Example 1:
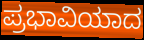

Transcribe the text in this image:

ಪ್ರಭಾವಿಯಾದ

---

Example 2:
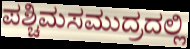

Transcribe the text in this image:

ಪಶ್ಚಿಮಸಮುದ್ರದಲ್ಲಿ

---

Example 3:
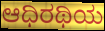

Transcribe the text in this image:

ಆಧಿರಥಿಯ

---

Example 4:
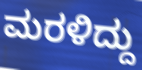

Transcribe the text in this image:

ಮರಳಿದ್ದು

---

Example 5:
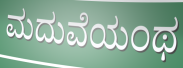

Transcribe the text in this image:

ಮದುವೆಯಂಥ